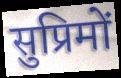
सुप्रिमों